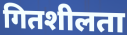
गितशीलता